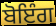
ਬੋਇੰਗ